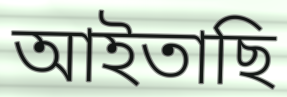
আইতাছি